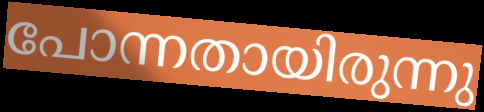
പോന്നതായിരുന്നു